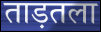
ताड़तला